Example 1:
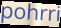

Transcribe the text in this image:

pohrri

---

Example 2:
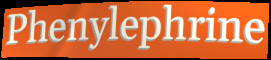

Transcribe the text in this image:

Phenylephrine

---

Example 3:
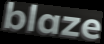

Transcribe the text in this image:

blaze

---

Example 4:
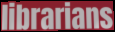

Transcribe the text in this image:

librarians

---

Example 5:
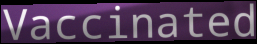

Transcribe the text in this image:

Vaccinated